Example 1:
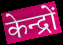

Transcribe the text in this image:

केन्द्रों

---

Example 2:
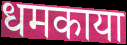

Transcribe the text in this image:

धमकाया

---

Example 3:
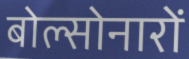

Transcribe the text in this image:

बोल्सोनारों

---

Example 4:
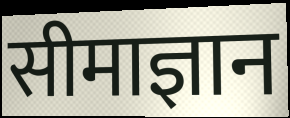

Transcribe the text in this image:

सीमाज्ञान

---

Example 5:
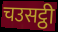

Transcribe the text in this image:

चउसट्ठी